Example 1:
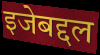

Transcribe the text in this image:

इजेबद्दल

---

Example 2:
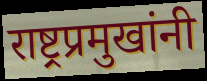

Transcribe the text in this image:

राष्ट्रप्रमुखांनी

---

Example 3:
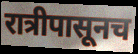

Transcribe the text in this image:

रात्रीपासूनच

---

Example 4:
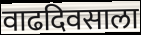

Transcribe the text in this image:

वाढदिवसाला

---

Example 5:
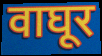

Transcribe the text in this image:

वाघूर